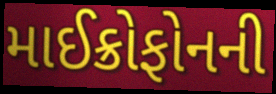
માઈક્રોફોનની